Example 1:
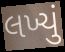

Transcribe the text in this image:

લખ્યું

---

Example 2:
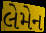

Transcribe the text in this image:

લેમેન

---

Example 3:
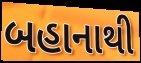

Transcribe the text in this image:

બહાનાથી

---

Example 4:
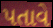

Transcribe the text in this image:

પતાવે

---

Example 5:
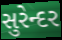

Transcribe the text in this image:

સુરેન્દર